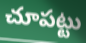
చూపట్టు